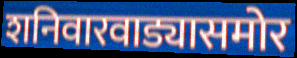
शनिवारवाड्यासमोर